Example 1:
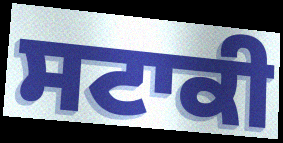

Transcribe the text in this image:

ਸਟਾਕੀ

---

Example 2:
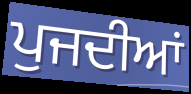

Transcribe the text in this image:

ਪੁਜਦੀਆਂ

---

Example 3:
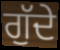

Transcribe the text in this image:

ਗੁੱਦੇ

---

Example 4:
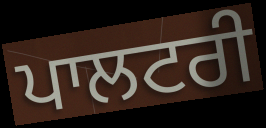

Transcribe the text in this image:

ਪਾਲਟਰੀ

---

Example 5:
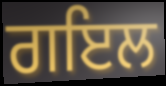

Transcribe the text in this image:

ਗਇਲ